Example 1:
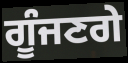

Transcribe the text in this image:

ਗੂੰਜਣਗੇ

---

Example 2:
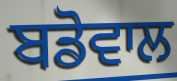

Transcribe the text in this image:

ਬਡੋਵਾਲ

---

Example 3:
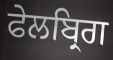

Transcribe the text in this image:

ਫੇਲਬ੍ਰਿਗ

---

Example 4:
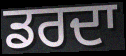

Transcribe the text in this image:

ਡਰਦਾ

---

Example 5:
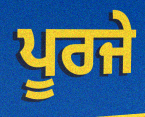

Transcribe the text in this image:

ਪੂਰਜੇ